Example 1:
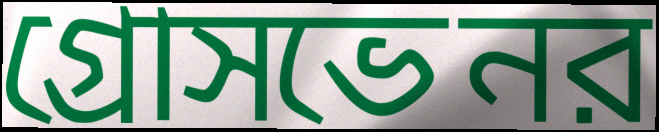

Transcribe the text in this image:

গ্রোসভেনর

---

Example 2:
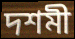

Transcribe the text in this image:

দশমী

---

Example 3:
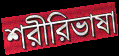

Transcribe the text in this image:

শরীরিভাষা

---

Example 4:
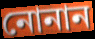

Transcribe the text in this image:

নোনান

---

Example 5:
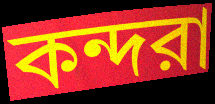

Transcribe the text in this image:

কন্দরা